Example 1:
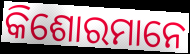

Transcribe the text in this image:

କିଶୋରମାନେ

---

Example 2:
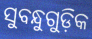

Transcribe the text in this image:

ସୁବନ୍ଧୁଗୁଡ଼ିକ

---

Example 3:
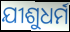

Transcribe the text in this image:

ଯୀଶୁଧର୍ମ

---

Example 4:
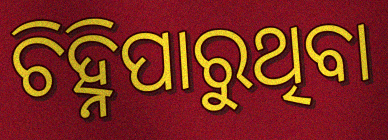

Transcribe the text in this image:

ଚିହ୍ନିପାରୁଥିବା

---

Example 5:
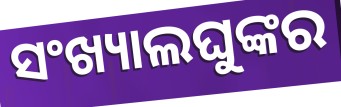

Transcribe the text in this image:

ସଂଖ୍ୟାଲଘୁଙ୍କର